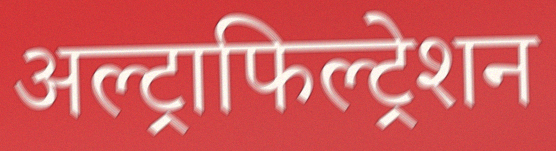
अल्ट्राफिल्ट्रेशन